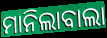
ମାନିଲାବାଲା